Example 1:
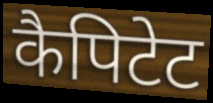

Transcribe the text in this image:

कैपिटेट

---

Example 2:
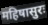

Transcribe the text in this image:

महिषासुरः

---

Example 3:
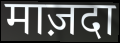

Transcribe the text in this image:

माज़दा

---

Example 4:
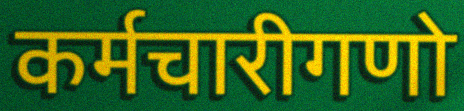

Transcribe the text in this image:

कर्मचारीगणो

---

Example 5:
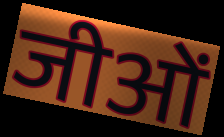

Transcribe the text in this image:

जीओं